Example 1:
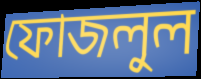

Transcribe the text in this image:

ফোজলুল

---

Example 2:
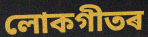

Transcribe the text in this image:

লোকগীতৰ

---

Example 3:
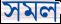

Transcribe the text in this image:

সমল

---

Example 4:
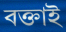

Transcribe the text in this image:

বক্তাই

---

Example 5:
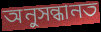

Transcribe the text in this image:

অনুসন্ধানত